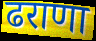
ढराणा